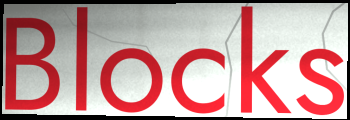
Blocks